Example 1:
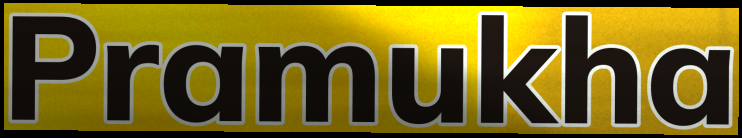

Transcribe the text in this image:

Pramukha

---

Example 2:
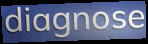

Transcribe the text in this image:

diagnose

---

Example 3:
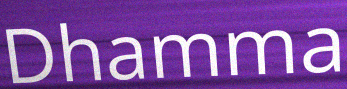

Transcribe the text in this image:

Dhamma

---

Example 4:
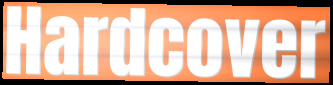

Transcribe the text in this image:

Hardcover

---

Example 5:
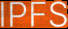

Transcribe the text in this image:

IPFS